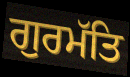
ਗੁਰਮੱਤਿ